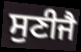
ਸੁਣੀਜੈ